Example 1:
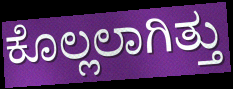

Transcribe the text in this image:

ಕೊಲ್ಲಲಾಗಿತ್ತು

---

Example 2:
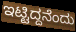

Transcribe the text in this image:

ಇಟ್ಟಿದ್ದನೆಂದು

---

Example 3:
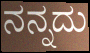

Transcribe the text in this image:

ನನ್ನದು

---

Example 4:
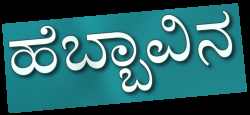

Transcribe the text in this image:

ಹೆಬ್ಬಾವಿನ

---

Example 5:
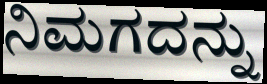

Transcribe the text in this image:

ನಿಮಗದನ್ನು